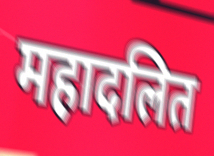
महादलित